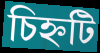
চিহ্নটি